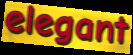
elegant